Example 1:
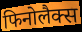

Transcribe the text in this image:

फिनोलैक्स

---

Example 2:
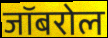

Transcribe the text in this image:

जॉबरोल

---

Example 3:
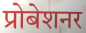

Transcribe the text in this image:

प्रोबेशनर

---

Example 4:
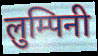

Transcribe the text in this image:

लुम्पिनी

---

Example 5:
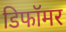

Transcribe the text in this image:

डिफॉमर